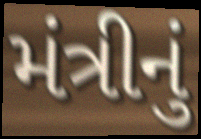
મંત્રીનું